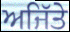
ਅਜਿੱਤੇ